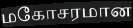
மகோசரமான